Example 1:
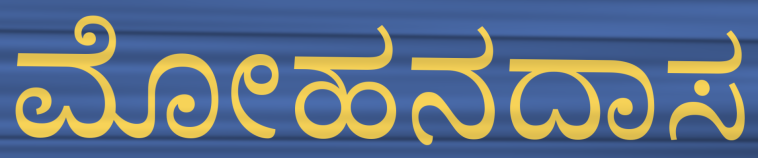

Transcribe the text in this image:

ಮೋಹನದಾಸ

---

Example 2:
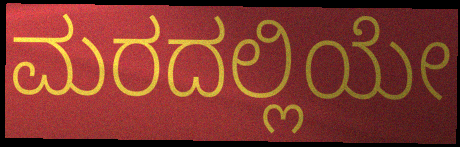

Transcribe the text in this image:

ಮರದಲ್ಲಿಯೇ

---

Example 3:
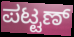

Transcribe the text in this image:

ಪಟ್ಟಣ್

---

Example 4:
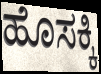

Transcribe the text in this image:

ಹೊಸಕ್ಕಿ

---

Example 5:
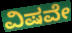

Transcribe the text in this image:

ವಿಷವೇ